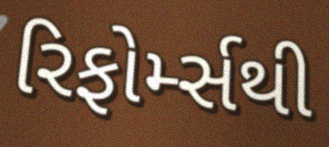
રિફોર્મ્સથી